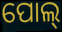
ପୋଲ୍